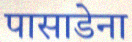
पासाडेना